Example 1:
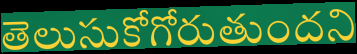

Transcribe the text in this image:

తెలుసుకోగోరుతుందని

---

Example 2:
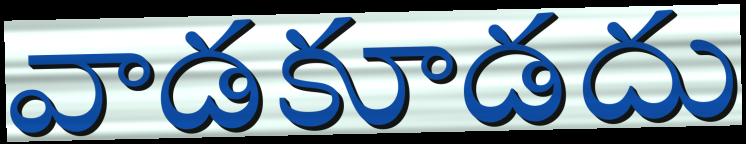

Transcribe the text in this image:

వాడకూడదు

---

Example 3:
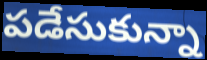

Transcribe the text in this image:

పడేసుకున్నా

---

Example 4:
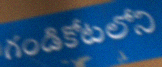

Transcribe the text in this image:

గండికోటలోని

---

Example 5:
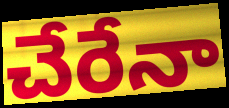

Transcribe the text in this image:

చేరేనా